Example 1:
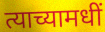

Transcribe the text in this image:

त्याच्यामधीं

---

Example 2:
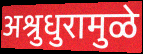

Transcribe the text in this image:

अश्रुधुरामुळे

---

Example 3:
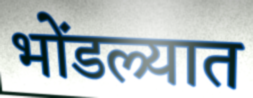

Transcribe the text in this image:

भोंडल्यात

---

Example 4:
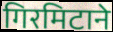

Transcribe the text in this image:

गिरमिटाने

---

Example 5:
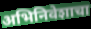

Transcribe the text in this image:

अभिनिवेशाचा